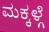
ಮಕ್ಕಳ್ಗೆ